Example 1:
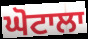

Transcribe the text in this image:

ਘੋਟਾਲਾ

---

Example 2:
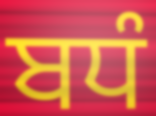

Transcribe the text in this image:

ਬਧੰ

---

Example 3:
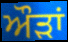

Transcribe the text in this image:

ਔੜਾਂ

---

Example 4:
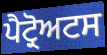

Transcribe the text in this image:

ਪੈਟ੍ਰੋਅਟਸ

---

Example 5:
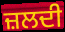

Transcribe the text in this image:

ਜ਼ਲਦੀ